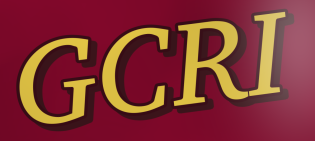
GCRI